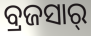
ବ୍ରଜସାର୍